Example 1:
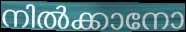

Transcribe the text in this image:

നിൽക്കാനോ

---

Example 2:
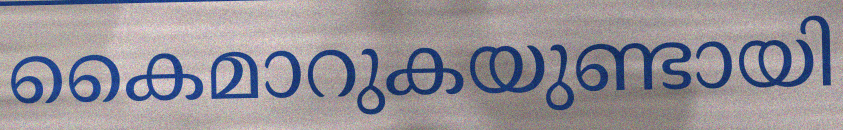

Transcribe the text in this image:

കൈമാറുകയുണ്ടായി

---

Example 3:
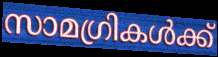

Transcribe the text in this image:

സാമഗ്രികൾക്ക്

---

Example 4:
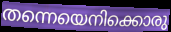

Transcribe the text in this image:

തന്നെയെനിക്കൊരു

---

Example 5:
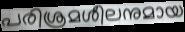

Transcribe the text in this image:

പരിശ്രമശീലനുമായ